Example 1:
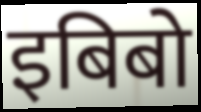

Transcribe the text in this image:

इबिबो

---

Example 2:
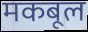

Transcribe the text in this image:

मकबूल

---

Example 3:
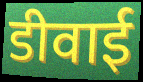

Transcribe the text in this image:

डीवाई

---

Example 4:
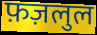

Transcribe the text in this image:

फ़ज़लुल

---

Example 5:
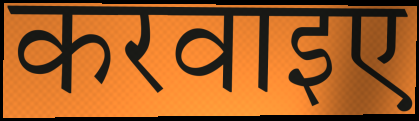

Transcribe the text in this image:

करवाइए